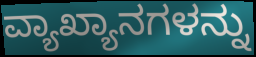
ವ್ಯಾಖ್ಯಾನಗಳನ್ನು